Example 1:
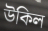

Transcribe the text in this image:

উকিল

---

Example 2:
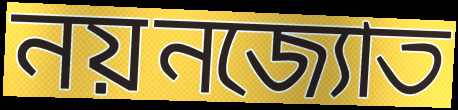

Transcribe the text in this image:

নয়নজ্যোত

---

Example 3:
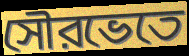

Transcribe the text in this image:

সৌরভেতে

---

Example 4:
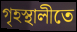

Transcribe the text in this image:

গৃহস্থালীতে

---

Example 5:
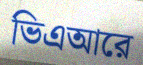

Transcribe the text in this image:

ভিএআরে